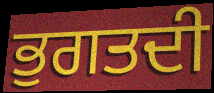
ਭੁਗਤਦੀ